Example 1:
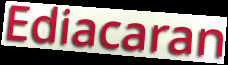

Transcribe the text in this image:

Ediacaran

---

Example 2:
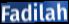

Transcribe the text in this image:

Fadilah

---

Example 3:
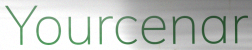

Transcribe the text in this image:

Yourcenar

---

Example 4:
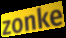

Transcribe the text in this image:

zonke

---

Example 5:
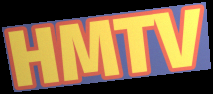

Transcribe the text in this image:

HMTV